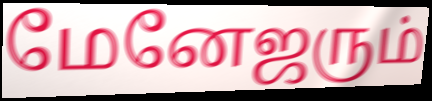
மேனேஜரும்